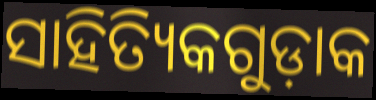
ସାହିତ୍ୟିକଗୁଡ଼ାକ